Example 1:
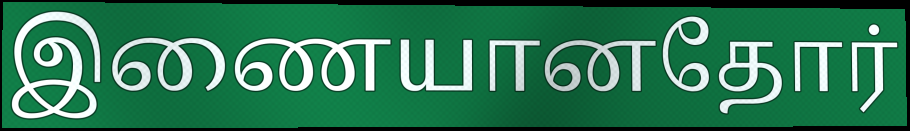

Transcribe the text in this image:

இணையானதோர்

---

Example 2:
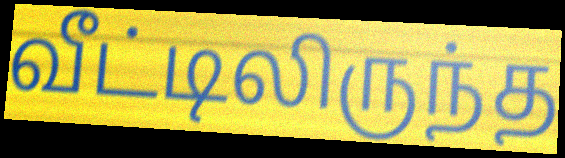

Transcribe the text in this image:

வீட்டிலிருந்த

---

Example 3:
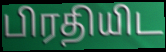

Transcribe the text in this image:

பிரதியிட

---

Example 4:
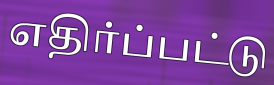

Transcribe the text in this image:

எதிர்ப்பட்டு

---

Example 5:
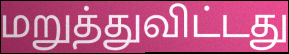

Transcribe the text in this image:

மறுத்துவிட்டது